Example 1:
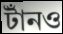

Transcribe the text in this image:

টাঁনও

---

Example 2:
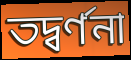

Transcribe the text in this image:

তদ্বর্ণনা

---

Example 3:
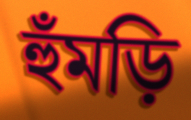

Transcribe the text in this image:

হুঁমড়ি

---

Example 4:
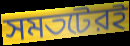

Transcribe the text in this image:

সমতটেরই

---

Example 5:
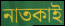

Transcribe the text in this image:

নাতকাই